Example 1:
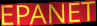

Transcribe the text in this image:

EPANET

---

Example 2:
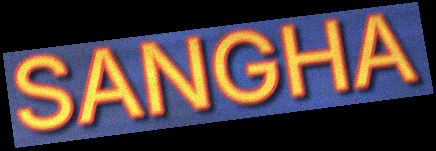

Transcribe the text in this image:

SANGHA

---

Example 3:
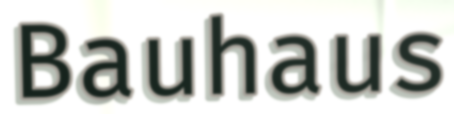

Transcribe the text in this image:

Bauhaus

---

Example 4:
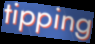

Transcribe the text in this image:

tipping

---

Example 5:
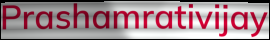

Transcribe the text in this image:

Prashamrativijay